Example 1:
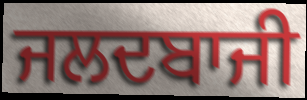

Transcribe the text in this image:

ਜਲਦਬਾਜੀ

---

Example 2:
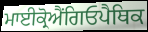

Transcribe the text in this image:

ਮਾਈਕ੍ਰੋਐਂਗਿਓਪੈਥਿਕ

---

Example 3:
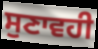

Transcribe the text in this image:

ਸੁਣਾਵਹੀ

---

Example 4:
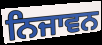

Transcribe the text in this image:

ਨਿਜਾਵਨ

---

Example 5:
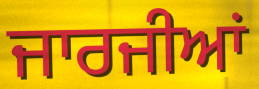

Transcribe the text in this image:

ਜਾਰਜੀਆਂ